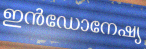
ഇൻഡോനേഷ്യ